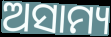
ଅସାମ୍ୟ